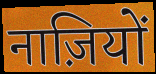
नाज़ियों